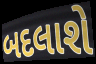
બદલાશે